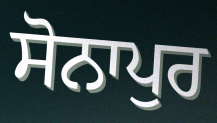
ਸੋਨਾਪੁਰ